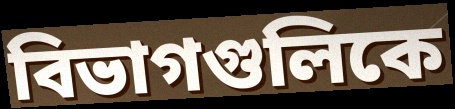
বিভাগগুলিকে